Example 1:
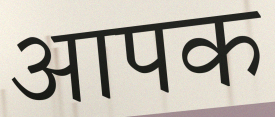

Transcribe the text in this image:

आपक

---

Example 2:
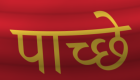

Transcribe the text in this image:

पाच्छे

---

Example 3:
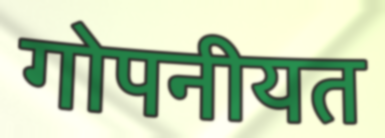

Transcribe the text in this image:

गोपनीयत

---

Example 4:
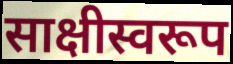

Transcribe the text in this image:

साक्षीस्वरूप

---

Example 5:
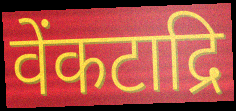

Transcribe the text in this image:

वेंकटाद्रि